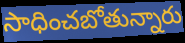
సాధించబోతున్నారు